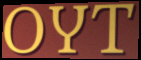
OYT